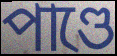
পাণ্ডে